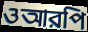
ওআরপি